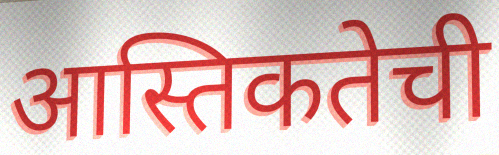
आस्तिकतेची